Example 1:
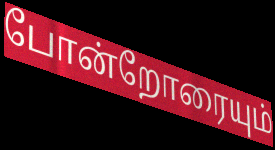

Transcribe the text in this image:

போன்றோரையும்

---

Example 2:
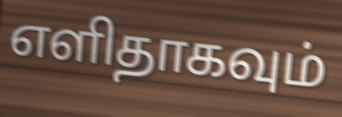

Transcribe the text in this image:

எளிதாகவும்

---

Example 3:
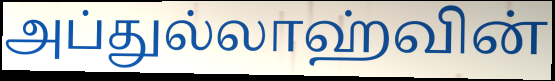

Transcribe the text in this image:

அப்துல்லாஹ்வின்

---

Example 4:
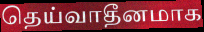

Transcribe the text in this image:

தெய்வாதீனமாக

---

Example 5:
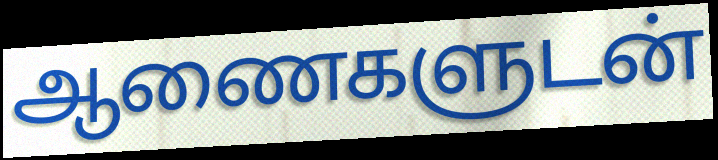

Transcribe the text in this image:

ஆணைகளுடன்